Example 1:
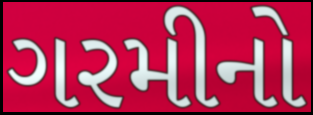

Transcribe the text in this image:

ગરમીનો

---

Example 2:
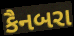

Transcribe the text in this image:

કૈનબરા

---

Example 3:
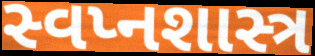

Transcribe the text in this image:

સ્વપ્નશાસ્ત્ર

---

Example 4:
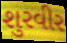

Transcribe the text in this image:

શુરવીર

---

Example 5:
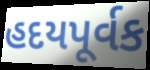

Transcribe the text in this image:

હદયપૂર્વક